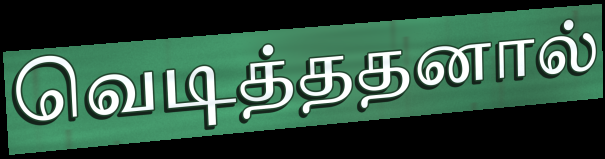
வெடித்ததனால்